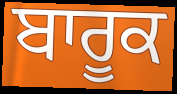
ਬਾਰੂਕ